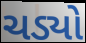
ચડ્યો